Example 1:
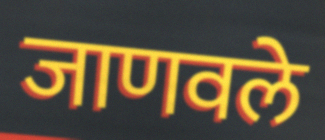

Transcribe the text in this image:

जाणवले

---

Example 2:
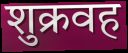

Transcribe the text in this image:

शुक्रवह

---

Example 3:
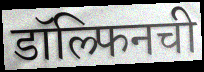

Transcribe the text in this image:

डॉल्फिनची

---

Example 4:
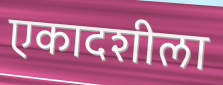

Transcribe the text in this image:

एकादशीला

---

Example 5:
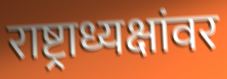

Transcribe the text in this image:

राष्ट्राध्यक्षांवर